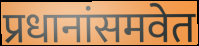
प्रधानांसमवेत